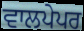
ਵਾਲਪੇਪਰ